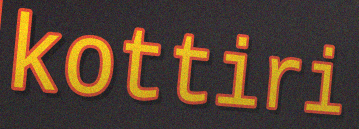
kottiri